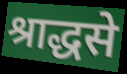
श्राद्धसे